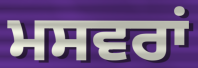
ਮਸਵਰਾਂ